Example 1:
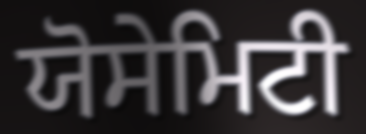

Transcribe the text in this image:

ਯੋਸੇਮਿਟੀ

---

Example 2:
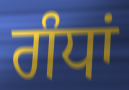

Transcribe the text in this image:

ਗੰਧਾਂ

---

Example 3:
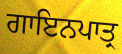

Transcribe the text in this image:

ਗਾਇਨਪਾਤ੍ਰ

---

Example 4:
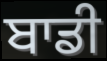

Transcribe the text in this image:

ਬਾਡੀ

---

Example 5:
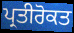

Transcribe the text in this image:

ਪ੍ਰਤੀਰੋਕਤ